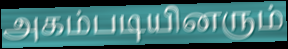
அகம்படியினரும்